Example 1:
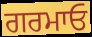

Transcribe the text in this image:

ਗਰਮਾਓ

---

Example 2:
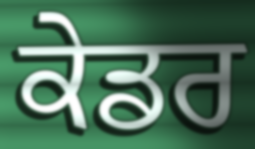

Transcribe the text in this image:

ਕੇਡਰ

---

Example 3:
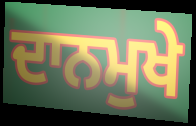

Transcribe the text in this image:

ਦਾਨਮੁਖੇ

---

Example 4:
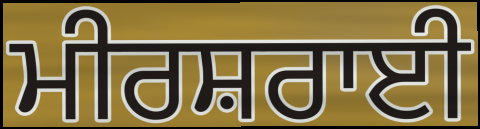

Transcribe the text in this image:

ਮੀਰਸ਼ਰਾਈ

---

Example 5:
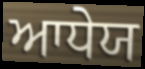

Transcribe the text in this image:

ਆਧੇਯ